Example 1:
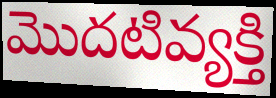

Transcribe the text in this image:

మొదటివ్యక్తి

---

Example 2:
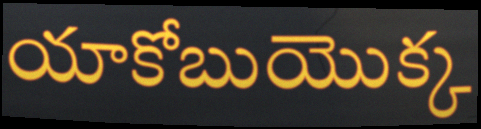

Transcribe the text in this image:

యాకోబుయొక్క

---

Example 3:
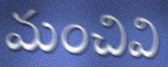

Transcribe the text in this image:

మంచివి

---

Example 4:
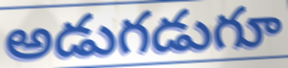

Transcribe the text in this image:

అడుగడుగూ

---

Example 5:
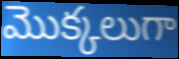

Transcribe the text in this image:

మొక్కలుగా